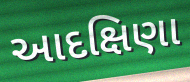
આદક્ષિણા